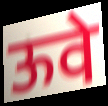
ऊवे